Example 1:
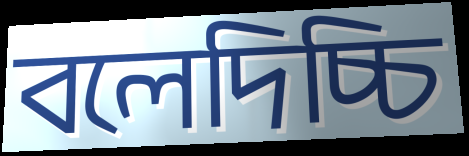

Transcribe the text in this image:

বলেদিচ্চি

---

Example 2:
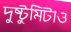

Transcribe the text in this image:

দুষ্টুমিটাও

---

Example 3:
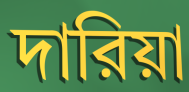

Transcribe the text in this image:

দারিয়া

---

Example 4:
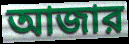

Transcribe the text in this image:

আজার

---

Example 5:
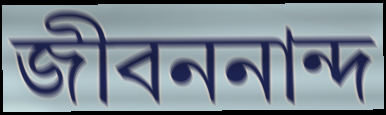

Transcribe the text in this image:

জীবননান্দ